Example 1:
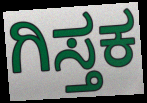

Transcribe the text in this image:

ಗಿಸ್ತಕ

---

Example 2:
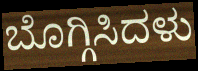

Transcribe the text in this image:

ಬೊಗ್ಗಿಸಿದಳು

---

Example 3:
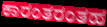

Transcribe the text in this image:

ಕಾರಂತರಂತಹ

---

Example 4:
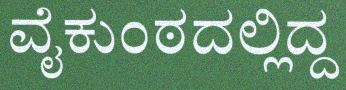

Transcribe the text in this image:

ವೈಕುಂಠದಲ್ಲಿದ್ದ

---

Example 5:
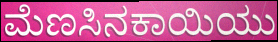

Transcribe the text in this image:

ಮೆಣಸಿನಕಾಯಿಯು